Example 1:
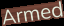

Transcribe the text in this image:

Armed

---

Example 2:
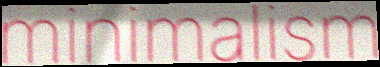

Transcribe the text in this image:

minimalism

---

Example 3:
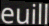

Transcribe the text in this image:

euill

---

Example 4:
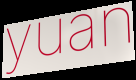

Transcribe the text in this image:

yuan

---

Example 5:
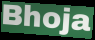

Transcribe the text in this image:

Bhoja